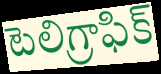
టెలిగ్రాఫిక్